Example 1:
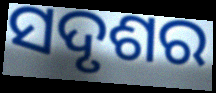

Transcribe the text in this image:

ସଦୃଶର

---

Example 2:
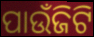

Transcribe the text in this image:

ପାଉଁଜିଟି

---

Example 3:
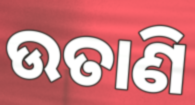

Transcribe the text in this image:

ଉତାଣି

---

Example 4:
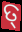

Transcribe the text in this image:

ତ୍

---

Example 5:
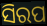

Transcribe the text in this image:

ସିରପ